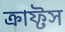
ক্রাফ্টস